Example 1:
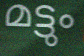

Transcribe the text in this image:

മട്ടും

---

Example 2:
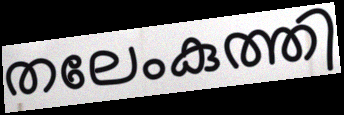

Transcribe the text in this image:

തലേംകുത്തി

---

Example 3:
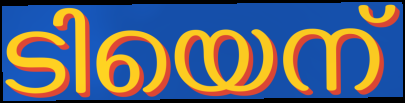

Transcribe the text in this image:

ടിയെന്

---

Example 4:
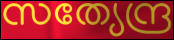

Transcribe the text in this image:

സത്യേന്ദ്ര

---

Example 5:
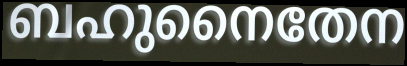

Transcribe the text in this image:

ബഹുനൈതേന